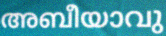
അബീയാവു